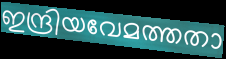
ഇന്ദ്രിയവേമത്തതാ